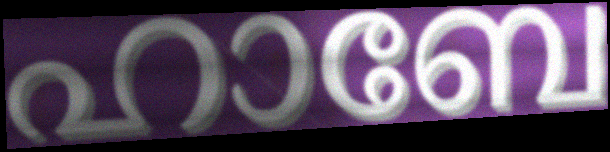
ഹാബേ